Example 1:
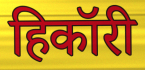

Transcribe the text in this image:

हिकॉरी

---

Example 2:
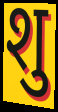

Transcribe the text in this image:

शु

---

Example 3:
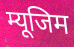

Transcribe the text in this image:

म्यूजिम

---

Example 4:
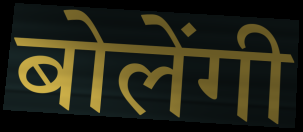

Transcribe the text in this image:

बोलेंगी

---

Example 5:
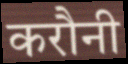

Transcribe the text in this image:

करौनी